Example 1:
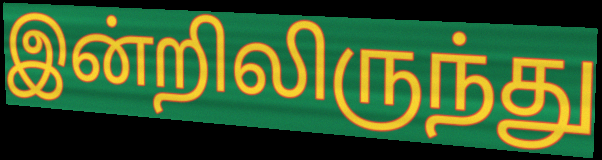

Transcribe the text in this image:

இன்றிலிருந்து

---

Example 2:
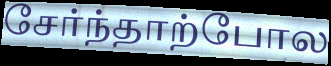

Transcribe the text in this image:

சேர்ந்தாற்போல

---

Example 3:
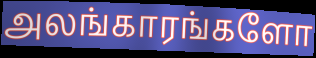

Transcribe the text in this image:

அலங்காரங்களோ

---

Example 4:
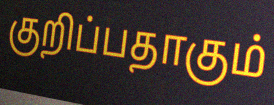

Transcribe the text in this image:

குறிப்பதாகும்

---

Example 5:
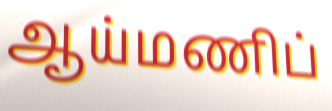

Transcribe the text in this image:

ஆய்மணிப்